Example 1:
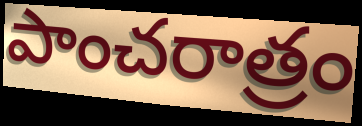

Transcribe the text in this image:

పాంచరాత్రం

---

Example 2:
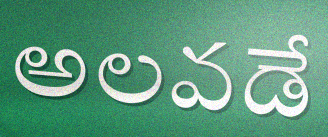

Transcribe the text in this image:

అలవడే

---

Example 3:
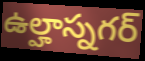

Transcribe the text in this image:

ఉల్హాస్నగర్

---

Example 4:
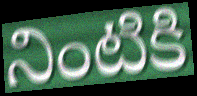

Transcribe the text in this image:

నింటికి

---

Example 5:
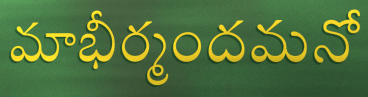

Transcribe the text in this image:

మాభీర్మందమనో